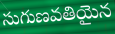
సుగుణవతియైన